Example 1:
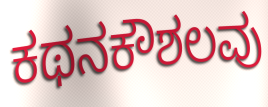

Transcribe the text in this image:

ಕಥನಕೌಶಲವು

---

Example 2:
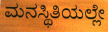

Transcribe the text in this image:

ಮನಸ್ಥಿತಿಯಲ್ಲೇ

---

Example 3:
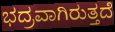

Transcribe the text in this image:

ಭದ್ರವಾಗಿರುತ್ತದೆ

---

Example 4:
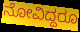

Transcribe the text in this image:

ನೋವಿದ್ದರೂ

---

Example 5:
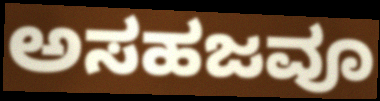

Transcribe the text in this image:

ಅಸಹಜವೂ